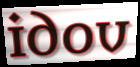
idou